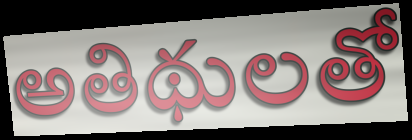
అతిథులతో